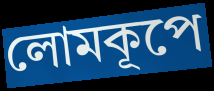
লোমকূপে